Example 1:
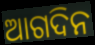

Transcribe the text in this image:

ଆଗଦିନ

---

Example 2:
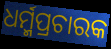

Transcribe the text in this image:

ଧର୍ମ୍ମପ୍ରଚାରକ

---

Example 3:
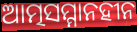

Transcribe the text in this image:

ଆତ୍ମସମ୍ମାନହୀନ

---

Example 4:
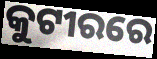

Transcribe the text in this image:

କୁଟୀରରେ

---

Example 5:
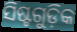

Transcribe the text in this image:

ସିଷ୍ଟଗୁଡ଼ିକ